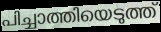
പിച്ചാത്തിയെടുത്ത്